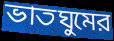
ভাতঘুমের